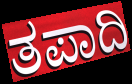
ತಪಾದಿ